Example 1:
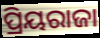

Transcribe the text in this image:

ପ୍ରିୟରାଜା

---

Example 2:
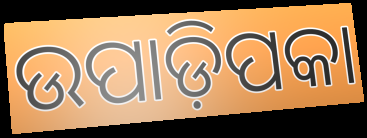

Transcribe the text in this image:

ଉପାଡ଼ିପକା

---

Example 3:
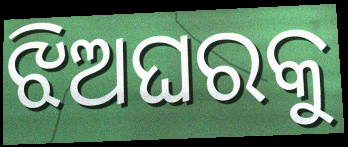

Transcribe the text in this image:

ଝିଅଘରକୁ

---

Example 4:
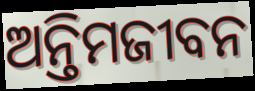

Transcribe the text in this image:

ଅନ୍ତିମଜୀବନ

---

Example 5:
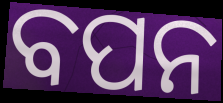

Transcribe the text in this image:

ବପନ